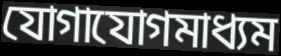
যোগাযোগমাধ্যম